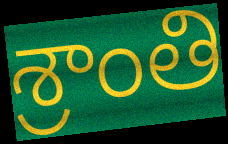
శ్రాంతి